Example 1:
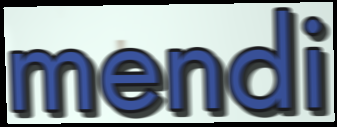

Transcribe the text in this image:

mendi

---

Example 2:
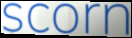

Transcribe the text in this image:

scorn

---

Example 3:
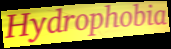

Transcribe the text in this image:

Hydrophobia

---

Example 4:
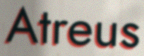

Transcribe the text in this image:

Atreus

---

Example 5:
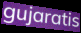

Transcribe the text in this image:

gujaratis